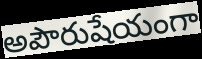
అపౌరుషేయంగా